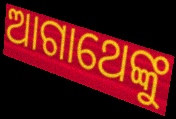
ଆଗାଥେଙ୍କୁ